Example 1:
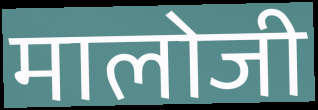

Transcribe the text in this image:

मालोजी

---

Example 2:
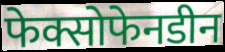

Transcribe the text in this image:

फेक्सोफेनडीन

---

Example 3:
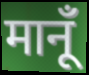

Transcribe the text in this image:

मानूँ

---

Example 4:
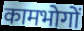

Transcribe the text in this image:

कामभोगों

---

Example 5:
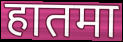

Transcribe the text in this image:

हातमा